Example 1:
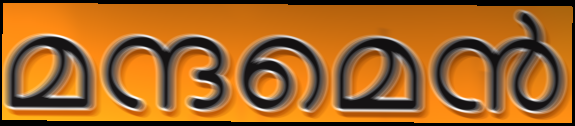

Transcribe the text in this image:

മന്ദമെൻ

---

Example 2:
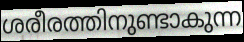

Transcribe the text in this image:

ശരീരത്തിനുണ്ടാകുന്ന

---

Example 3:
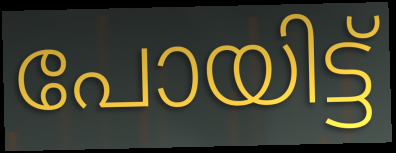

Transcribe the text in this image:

പോയിട്ട്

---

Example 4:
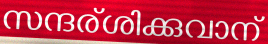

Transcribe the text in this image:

സന്ദര്ശിക്കുവാന്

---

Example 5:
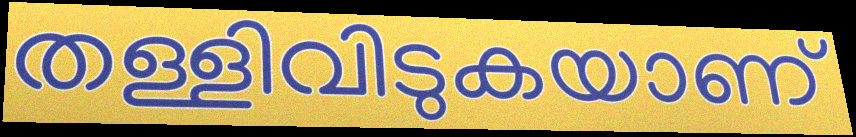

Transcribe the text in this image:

തള്ളിവിടുകയാണ്